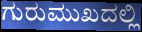
ಗುರುಮುಖದಲ್ಲಿ